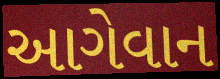
આગેવાન